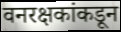
वनरक्षकांकडून